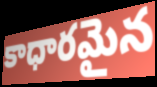
కాధారమైన